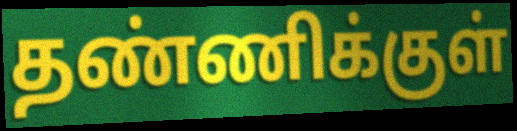
தண்ணிக்குள்